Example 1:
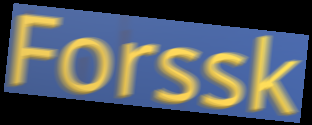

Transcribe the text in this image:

Forssk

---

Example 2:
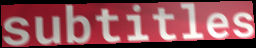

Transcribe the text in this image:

subtitles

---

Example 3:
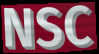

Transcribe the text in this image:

NSC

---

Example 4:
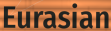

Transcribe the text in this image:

Eurasian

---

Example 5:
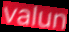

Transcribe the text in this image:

valun